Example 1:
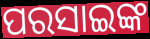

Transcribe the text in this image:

ପରସାଇଙ୍କ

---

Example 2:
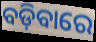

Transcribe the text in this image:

ବଡ଼ିବାରେ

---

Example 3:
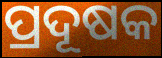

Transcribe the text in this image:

ପ୍ରଦୂଷକ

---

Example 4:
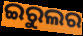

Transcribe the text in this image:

ଇରୁଲର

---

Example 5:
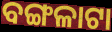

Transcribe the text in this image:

ବଙ୍ଗଳାଟା